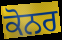
ਕੋਨਰ